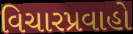
વિચારપ્રવાહો